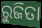
ରୁଜିତା